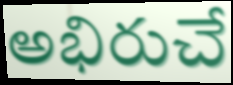
అభిరుచే